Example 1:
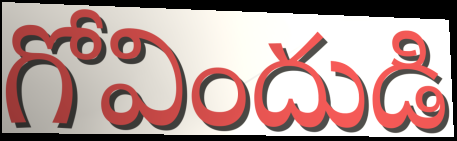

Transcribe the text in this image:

గోవిందుడి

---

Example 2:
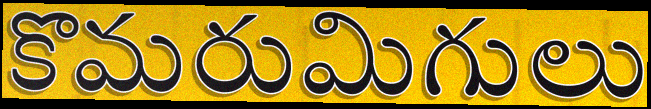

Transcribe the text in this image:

కొమరుమిగులు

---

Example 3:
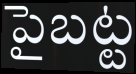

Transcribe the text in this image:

పైబట్ట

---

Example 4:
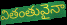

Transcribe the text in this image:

వితంతువైనా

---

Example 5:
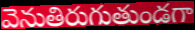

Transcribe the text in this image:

వెనుతిరుగుతుండగా